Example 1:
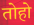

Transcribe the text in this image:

तोहो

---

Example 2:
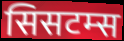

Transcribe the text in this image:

सिसटम्स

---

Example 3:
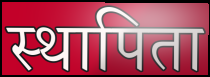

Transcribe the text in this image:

स्थापिता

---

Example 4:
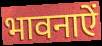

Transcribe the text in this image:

भावनाऐं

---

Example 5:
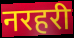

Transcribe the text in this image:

नरहरी